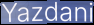
Yazdani